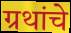
ग्रथांचे